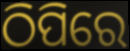
ଠିପିରେ